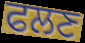
ਫਲਣ